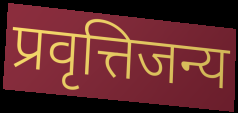
प्रवृत्तिजन्य